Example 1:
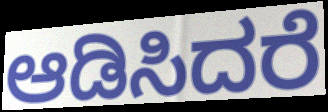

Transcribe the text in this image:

ಆಡಿಸಿದರೆ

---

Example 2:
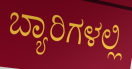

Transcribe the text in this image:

ಬ್ಯಾರಿಗಳಲ್ಲಿ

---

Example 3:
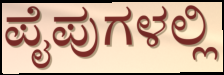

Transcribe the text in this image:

ಪೈಪುಗಳಲ್ಲಿ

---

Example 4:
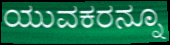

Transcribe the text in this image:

ಯುವಕರನ್ನೂ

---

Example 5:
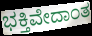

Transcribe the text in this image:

ಭಕ್ತಿವೇದಾಂತ